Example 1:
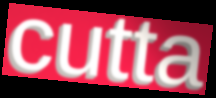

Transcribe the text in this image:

cutta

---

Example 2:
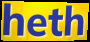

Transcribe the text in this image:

heth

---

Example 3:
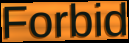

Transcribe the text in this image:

Forbid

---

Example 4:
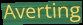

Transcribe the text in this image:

Averting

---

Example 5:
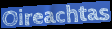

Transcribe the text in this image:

Oireachtas